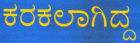
ಕರಕಲಾಗಿದ್ದ